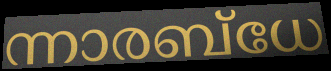
ന്നാരബ്ധേ